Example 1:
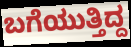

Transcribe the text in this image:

ಬಗೆಯುತ್ತಿದ್ದ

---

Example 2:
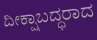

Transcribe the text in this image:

ದೀಕ್ಷಾಬದ್ಧರಾದ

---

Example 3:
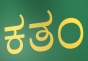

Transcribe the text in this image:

ಕತಂ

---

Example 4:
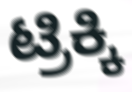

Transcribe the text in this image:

ಟ್ರಿಕ್ಕಿ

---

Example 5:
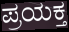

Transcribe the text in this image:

ಪ್ರಯಕ್ತ